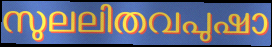
സുലലിതവപുഷാ